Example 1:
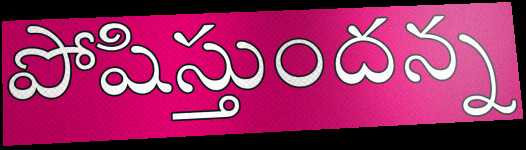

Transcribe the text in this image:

పోషిస్తుందన్న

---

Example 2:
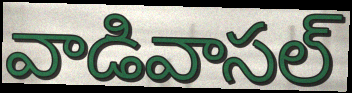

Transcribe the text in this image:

వాడివాసల్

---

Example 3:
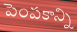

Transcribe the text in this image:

పెంపకాన్ని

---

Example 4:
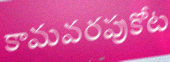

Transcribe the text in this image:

కామవరపుకోట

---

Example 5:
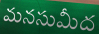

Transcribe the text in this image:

మనసుమీద